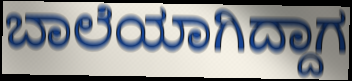
ಬಾಲೆಯಾಗಿದ್ದಾಗ